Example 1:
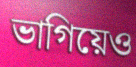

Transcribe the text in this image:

ভাগিয়েও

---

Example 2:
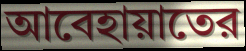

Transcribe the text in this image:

আবেহায়াতের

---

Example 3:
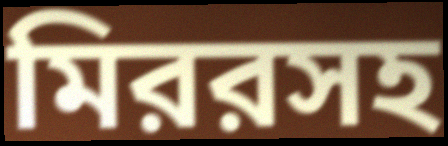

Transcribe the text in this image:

মিররসহ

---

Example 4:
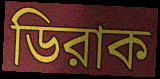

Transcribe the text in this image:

ডিরাক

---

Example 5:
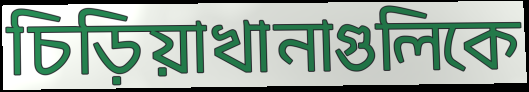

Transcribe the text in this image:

চিড়িয়াখানাগুলিকে